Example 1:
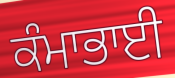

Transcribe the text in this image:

ਕੰਮਾਭਾਈ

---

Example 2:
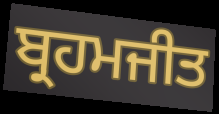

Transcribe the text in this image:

ਬ੍ਰਹਮਜੀਤ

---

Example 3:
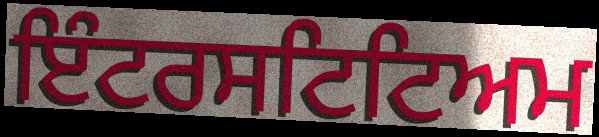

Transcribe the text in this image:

ਇੰਟਰਸਟਿਟਿਅਮ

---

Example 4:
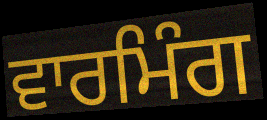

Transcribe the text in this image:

ਵਾਰਮਿੰਗ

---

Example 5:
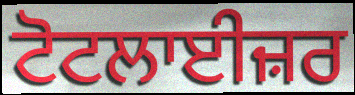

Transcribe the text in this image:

ਟੋਟਲਾਈਜ਼ਰ